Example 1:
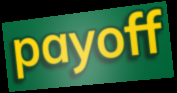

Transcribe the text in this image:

payoff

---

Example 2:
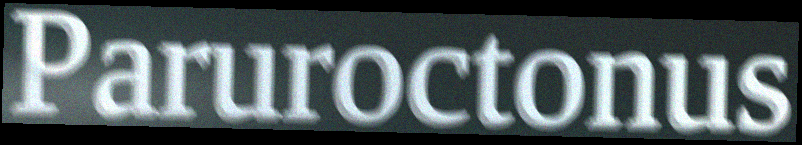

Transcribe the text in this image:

Paruroctonus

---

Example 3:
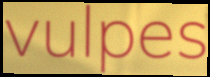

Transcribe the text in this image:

vulpes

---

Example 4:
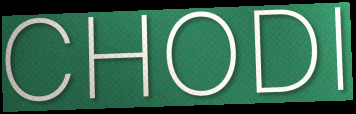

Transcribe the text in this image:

CHODI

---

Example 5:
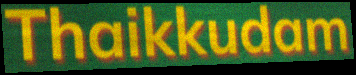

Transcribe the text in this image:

Thaikkudam